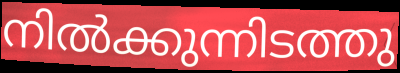
നിൽക്കുന്നിടത്തു